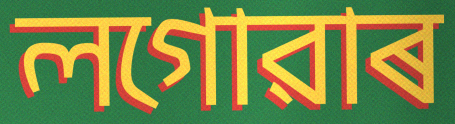
লগোৱাৰ